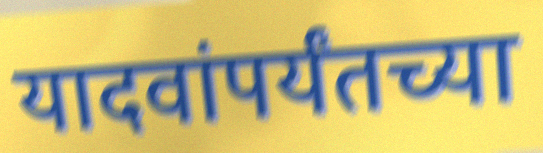
यादवांपर्यंतच्या